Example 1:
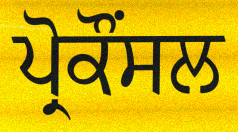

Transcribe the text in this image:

ਪ੍ਰੋਕੌਂਸਲ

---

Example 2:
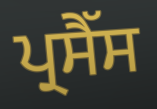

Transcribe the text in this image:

ਪ੍ਰਸੈੱਸ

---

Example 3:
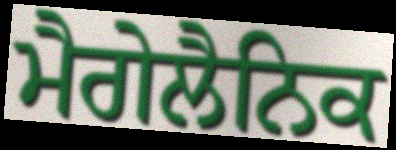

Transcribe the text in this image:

ਮੈਗੇਲੈਨਿਕ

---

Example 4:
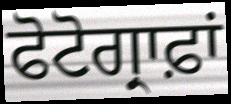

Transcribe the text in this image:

ਫੋਟੋਗ੍ਰਾਫ਼ਾਂ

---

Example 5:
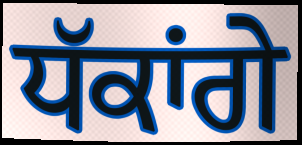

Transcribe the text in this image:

ਧੱਕਾਂਗੇ